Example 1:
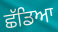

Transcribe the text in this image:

ਛੱਡਿਆ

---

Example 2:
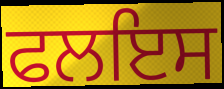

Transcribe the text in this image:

ਫਲਇਸ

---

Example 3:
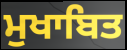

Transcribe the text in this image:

ਮੁਖਾਬਿਤ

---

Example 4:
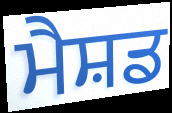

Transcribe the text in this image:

ਮੈਸ਼ਡ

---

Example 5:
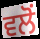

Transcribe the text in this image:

ਵਲੋਂ